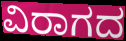
ವಿರಾಗದ